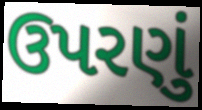
ઉપરણું